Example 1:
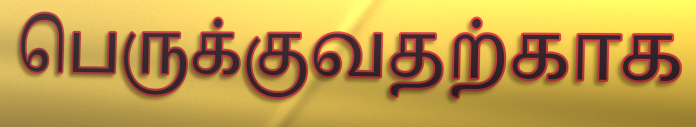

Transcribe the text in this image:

பெருக்குவதற்காக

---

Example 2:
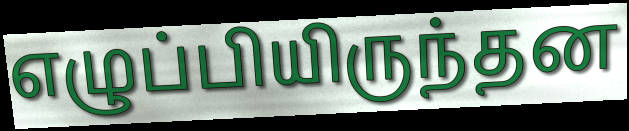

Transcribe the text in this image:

எழுப்பியிருந்தன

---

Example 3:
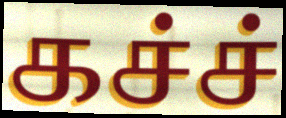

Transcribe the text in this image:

கச்ச்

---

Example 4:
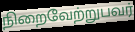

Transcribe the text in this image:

நிறைவேற்றுபவர்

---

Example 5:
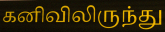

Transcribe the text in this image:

கனிவிலிருந்து